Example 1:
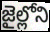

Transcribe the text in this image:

జైల్లోని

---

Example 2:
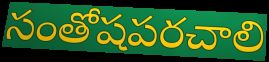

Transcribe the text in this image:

సంతోషపరచాలి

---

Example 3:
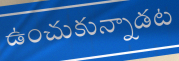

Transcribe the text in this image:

ఉంచుకున్నాడట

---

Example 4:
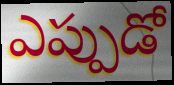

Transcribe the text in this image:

ఎప్పుడో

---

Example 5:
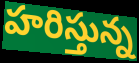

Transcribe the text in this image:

హరిస్తున్న